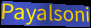
Payalsoni